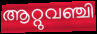
ആറ്റുവഞ്ചി